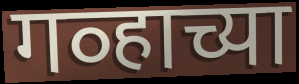
गव्हाच्या